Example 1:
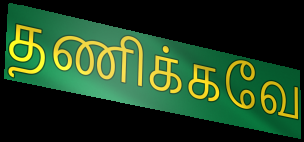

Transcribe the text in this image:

தணிக்கவே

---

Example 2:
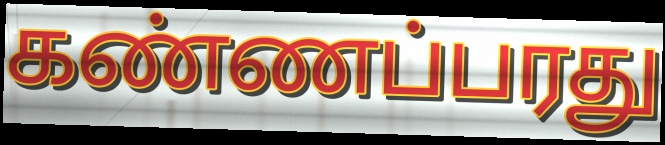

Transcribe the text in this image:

கண்ணப்பரது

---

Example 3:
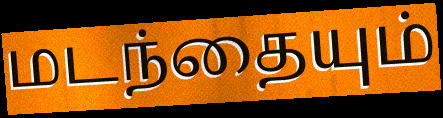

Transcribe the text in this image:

மடந்தையும்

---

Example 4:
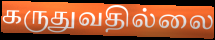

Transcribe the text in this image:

கருதுவதில்லை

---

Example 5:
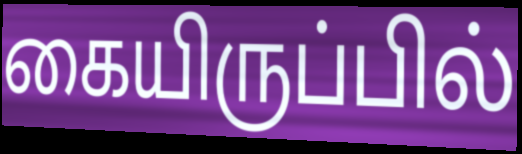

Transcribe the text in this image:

கையிருப்பில்